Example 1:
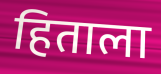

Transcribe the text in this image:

हिताला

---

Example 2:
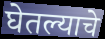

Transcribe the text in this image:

घेतल्याचे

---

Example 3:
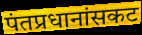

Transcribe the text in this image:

पंतप्रधानांसकट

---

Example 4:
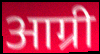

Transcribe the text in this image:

आग्री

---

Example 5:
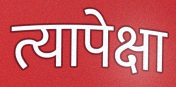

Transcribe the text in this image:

त्यापेक्षा